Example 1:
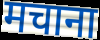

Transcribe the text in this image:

मचाना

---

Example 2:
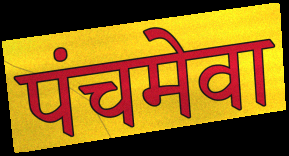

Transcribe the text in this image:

पंचमेवा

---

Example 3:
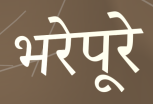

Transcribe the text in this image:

भरेपूरे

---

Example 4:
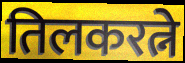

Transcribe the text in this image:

तिलकरत्ने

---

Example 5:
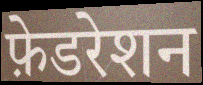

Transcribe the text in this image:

फ़ेडरेशन